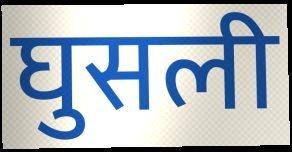
घुसली